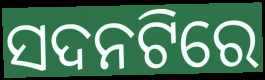
ସଦନଟିରେ